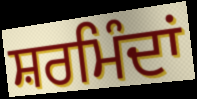
ਸ਼ਰਮਿੰਦਾਂ